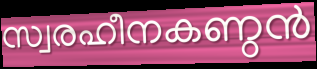
സ്വരഹീനകണ്ഠൻ